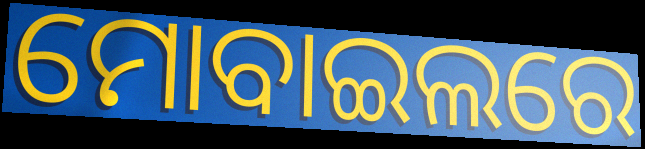
ମୋବାଇଲରେ